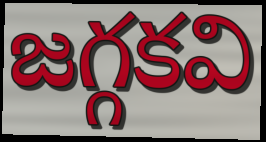
జగ్గకవి